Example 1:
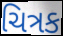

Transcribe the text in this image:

ચિત્રક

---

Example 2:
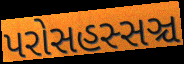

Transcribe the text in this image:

પરોસહસ્સઞ્ચ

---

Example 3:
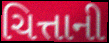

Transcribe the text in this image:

ચિત્તાની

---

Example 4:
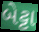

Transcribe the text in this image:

બેટ્ટા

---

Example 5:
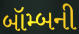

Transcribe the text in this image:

બૉમ્બની